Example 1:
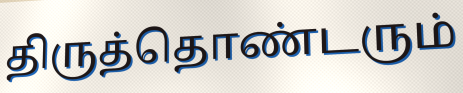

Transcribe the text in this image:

திருத்தொண்டரும்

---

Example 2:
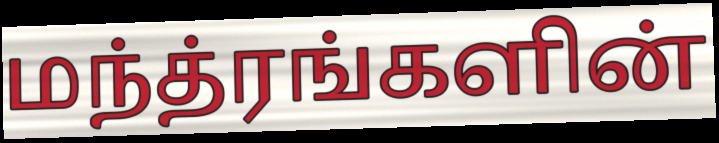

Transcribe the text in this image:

மந்த்ரங்களின்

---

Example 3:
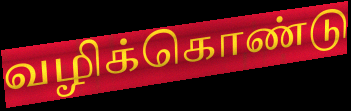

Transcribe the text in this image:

வழிக்கொண்டு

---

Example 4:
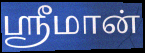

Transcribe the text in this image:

ஸ்ரீமான்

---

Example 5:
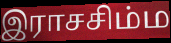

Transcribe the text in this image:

இராசசிம்ம